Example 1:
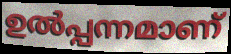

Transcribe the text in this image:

ഉൽപ്പന്നമാണ്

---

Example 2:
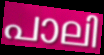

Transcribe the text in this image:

പാലി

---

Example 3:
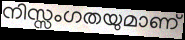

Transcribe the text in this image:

നിസ്സംഗതയുമാണ്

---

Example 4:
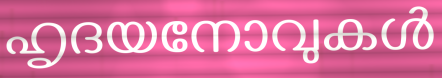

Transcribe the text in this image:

ഹൃദയനോവുകൾ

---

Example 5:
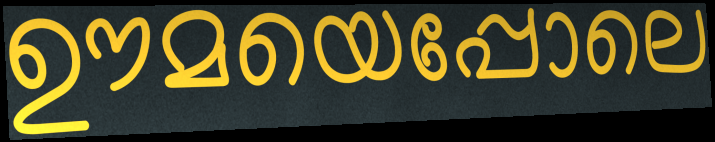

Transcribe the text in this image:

ഊമയെപ്പോലെ